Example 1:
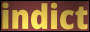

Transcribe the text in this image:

indict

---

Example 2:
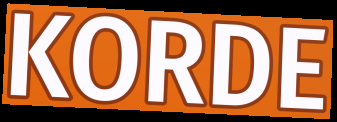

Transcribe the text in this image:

KORDE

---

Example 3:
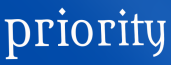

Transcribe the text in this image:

priority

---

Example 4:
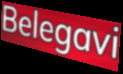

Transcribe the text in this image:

Belegavi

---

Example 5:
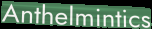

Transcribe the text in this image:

Anthelmintics